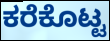
ಕರೆಕೊಟ್ಟ